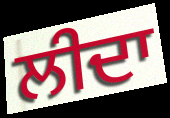
ਲੀਦਾ